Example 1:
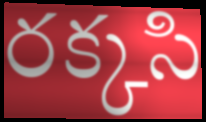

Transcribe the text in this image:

రక్కసి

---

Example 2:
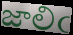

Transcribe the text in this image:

జాలిఁ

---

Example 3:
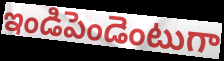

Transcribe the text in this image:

ఇండిపెండెంటుగా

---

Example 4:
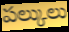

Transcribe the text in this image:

పల్కులు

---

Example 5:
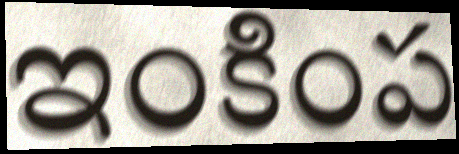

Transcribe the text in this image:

ఇంకింప